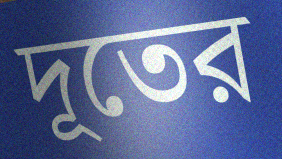
দূতের